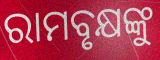
ରାମବୃକ୍ଷଙ୍କୁ